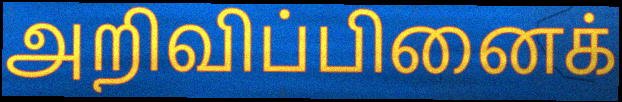
அறிவிப்பினைக்